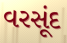
વરસૂંદ